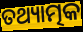
ତଥ୍ୟାତ୍ମକ